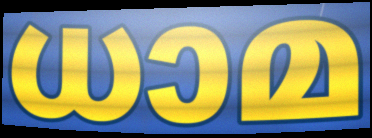
ധാമ